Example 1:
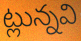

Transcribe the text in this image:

ట్లున్నవి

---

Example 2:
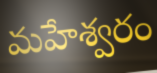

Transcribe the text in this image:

మహేశ్వరం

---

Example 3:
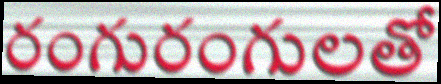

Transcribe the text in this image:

రంగురంగులతో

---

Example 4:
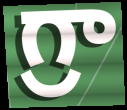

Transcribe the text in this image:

గ్రా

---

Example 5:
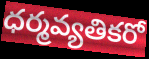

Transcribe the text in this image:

ధర్మవ్యతికరో